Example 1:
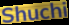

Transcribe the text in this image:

Shuchi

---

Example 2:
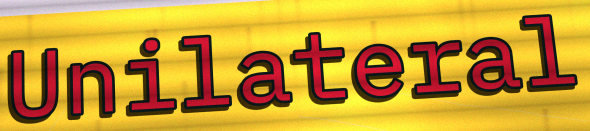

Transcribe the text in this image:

Unilateral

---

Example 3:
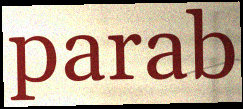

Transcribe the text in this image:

parab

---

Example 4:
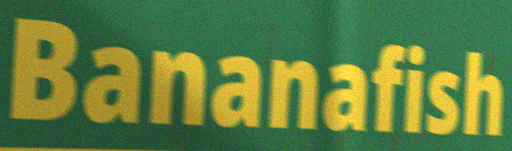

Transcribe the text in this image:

Bananafish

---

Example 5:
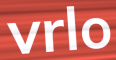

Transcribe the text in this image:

vrlo